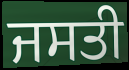
ਜਸਤੀ